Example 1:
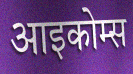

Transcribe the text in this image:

आइकोम्स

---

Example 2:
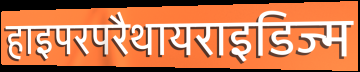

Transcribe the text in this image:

हाइपरपरैथायराइडिज्म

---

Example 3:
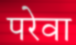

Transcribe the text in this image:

परेवा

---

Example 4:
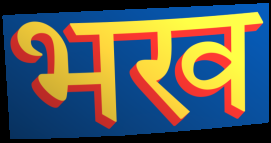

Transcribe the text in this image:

भख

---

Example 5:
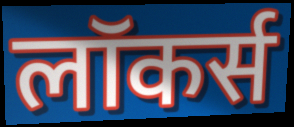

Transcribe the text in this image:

लॉकर्स